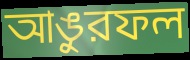
আঙুরফল